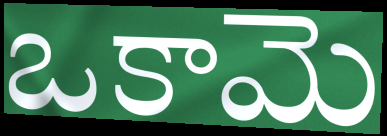
ఒకామె